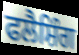
ਫਲੈਸ਼ਿੰਗ